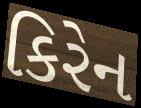
કિરેન